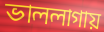
ভাললাগায়